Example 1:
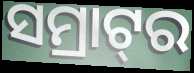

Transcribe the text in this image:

ସମ୍ରାଟ୍‌ର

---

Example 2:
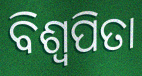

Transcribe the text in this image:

ବିଶ୍ଵପିତା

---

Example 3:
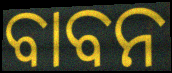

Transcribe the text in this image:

ବାବନ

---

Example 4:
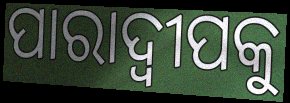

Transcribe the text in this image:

ପାରାଦ୍ୱୀପକୁ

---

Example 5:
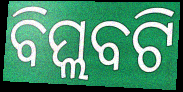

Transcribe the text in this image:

ବିପ୍ଲବଟି